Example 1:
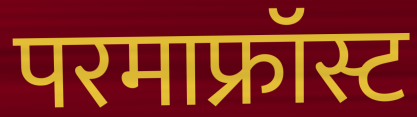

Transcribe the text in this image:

परमाफ्रॉस्ट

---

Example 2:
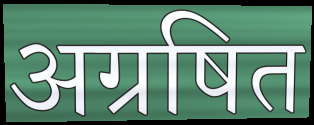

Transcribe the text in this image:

अग्रषित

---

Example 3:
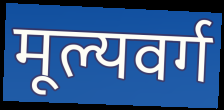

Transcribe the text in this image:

मूल्यवर्ग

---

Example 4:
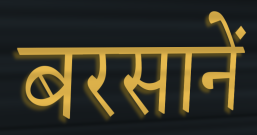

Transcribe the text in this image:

बरसानें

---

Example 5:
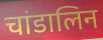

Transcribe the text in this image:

चांडालिन